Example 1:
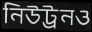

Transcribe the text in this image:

নিউট্রনও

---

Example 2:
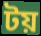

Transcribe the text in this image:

টয়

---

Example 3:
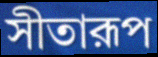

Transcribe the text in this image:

সীতারূপ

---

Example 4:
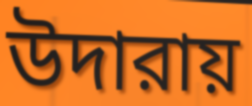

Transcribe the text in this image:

উদারায়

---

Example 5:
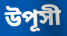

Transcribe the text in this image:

উপূসী